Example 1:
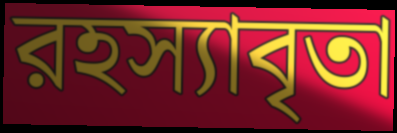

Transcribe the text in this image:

রহস্যাবৃতা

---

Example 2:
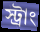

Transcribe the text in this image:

স্ট্রাং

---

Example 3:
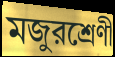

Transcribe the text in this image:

মজুরশ্রেণী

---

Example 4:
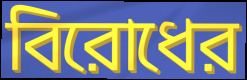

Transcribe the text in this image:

বিরোধের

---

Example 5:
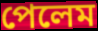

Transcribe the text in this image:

পেলেম